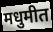
मधुमीत